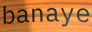
banaye